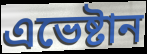
এভেষ্টান